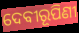
ଦେବୀରୂପିଣୀ